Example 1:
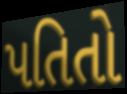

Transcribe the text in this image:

પતિતો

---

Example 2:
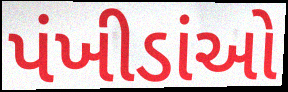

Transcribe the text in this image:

પંખીડાંઓ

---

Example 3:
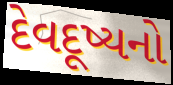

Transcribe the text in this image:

દેવદૂષ્યનો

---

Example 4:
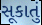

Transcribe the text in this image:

સૂકાતું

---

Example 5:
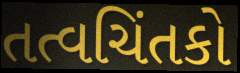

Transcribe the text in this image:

તત્વચિંતકો